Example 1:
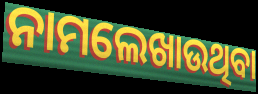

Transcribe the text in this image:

ନାମଲେଖାଉଥିବା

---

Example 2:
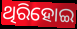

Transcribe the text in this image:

ଥିରିହୋଇ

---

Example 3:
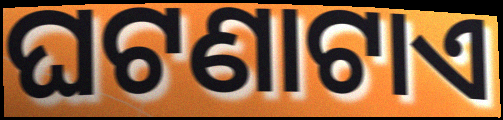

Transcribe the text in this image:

ଘଟଣାଟାଏ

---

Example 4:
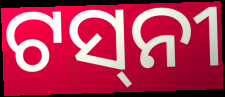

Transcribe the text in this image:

ଟସ୍‌ନୀ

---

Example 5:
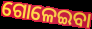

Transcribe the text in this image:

ଗୋଳେଇବା